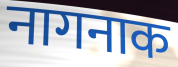
नागनाक